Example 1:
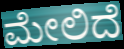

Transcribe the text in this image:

ಮೇಲಿದೆ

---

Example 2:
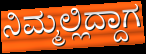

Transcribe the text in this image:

ನಿಮ್ಮಲ್ಲಿದ್ದಾಗ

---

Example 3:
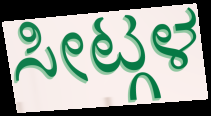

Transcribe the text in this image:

ಸೀಟ್ಗಳ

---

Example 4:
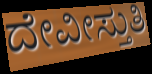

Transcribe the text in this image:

ದೇವೀಸ್ತುತಿ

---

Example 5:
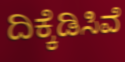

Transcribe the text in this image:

ದಿಕ್ಕೆಡಿಸಿವೆ